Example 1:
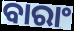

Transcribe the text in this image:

ବାରାଂ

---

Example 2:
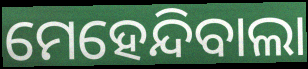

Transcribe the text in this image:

ମେହେନ୍ଦିବାଲା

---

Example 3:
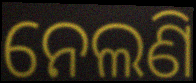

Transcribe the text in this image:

ନେଲଣି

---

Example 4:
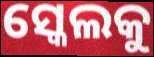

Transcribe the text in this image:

ସ୍କେଲକୁ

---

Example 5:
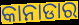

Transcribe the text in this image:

କାନାଡାର